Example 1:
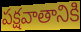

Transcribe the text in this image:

పక్షవాతానికి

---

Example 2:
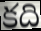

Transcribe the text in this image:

కది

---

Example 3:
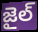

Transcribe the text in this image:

జైల్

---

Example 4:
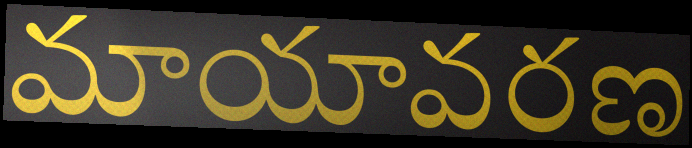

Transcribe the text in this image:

మాయావరణ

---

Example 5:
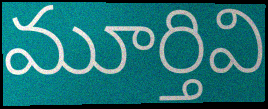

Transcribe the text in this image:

మూర్తివి